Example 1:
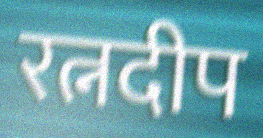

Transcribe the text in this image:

रत्नदीप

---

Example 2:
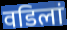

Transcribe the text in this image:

वडिलां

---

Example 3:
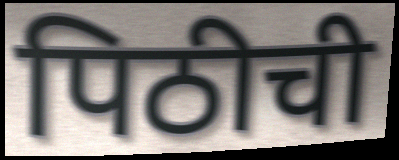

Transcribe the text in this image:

पिठीची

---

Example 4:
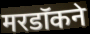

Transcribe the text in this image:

मरडॉकने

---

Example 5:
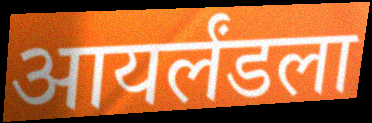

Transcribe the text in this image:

आयर्लंडला